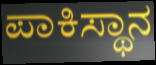
ಪಾಕಿಸ್ಥಾನ